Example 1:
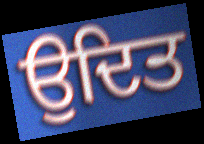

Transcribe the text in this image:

ਉਦਿਤ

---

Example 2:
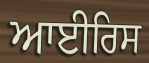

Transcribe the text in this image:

ਆਈਰਿਸ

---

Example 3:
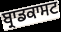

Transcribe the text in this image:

ਬ੍ਰਾਡਕਾਸਟ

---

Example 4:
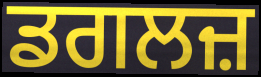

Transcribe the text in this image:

ਡਗਲਜ਼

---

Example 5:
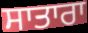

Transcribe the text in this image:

ਸਾਤਾਰਾ